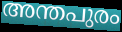
അന്തപുരം